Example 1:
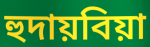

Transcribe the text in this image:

হুদায়বিয়া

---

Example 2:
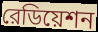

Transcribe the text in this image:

রেডিয়েশন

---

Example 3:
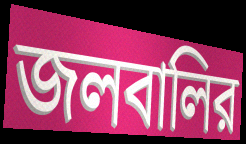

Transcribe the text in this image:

জলবালির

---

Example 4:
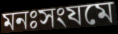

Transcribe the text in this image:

মনঃসংযমে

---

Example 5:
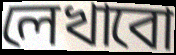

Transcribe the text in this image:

লেখাবো